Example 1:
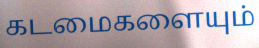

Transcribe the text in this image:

கடமைகளையும்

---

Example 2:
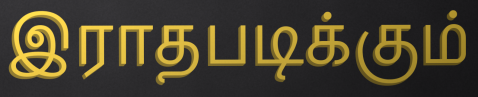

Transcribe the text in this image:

இராதபடிக்கும்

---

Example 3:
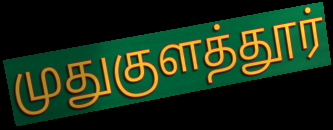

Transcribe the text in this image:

முதுகுளத்தூர்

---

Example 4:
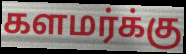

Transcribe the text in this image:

களமர்க்கு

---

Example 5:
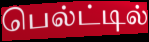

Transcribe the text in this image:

பெல்ட்டில்